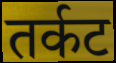
तर्कट